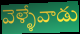
వెళ్ళేవాడు